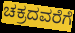
ಚಕ್ರದವರೆಗೆ